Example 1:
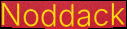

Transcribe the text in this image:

Noddack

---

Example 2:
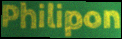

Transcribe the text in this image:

Philipon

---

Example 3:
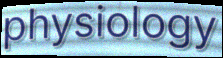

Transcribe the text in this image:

physiology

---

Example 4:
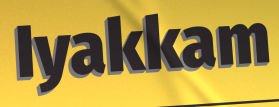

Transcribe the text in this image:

Iyakkam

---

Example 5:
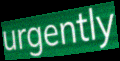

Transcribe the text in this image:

urgently